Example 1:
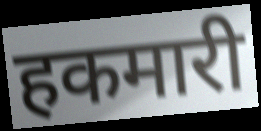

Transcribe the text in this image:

हकमारी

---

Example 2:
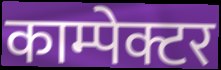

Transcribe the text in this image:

काम्पेक्टर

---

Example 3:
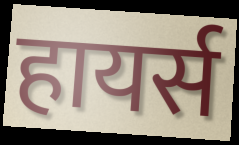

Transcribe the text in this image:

हायर्स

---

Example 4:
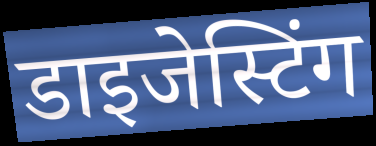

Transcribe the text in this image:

डाइजेस्टिंग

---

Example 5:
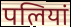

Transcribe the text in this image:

पलियां